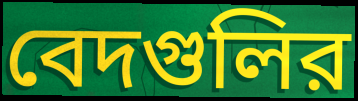
বেদগুলির